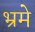
भ्रमे